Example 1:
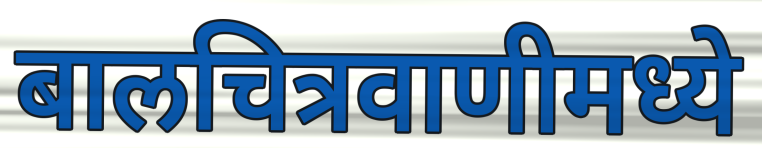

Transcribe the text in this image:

बालचित्रवाणीमध्ये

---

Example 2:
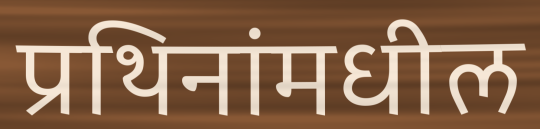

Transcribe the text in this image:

प्रथिनांमधील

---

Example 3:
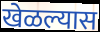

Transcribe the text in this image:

खेळल्यास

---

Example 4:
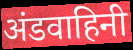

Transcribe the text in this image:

अंडवाहिनी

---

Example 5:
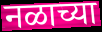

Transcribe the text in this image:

नळाच्या